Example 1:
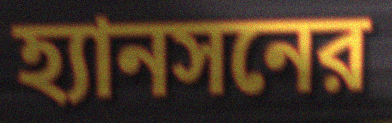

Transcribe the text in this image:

হ্যানসনের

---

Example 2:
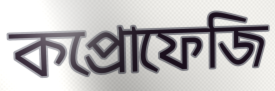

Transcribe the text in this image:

কপ্রোফেজি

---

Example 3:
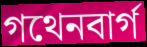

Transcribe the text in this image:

গথেনবার্গ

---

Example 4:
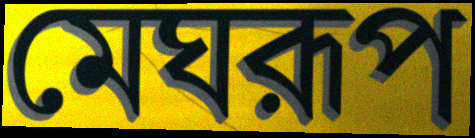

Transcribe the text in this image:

মেঘরূপ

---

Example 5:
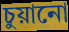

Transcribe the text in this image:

চুয়ানো